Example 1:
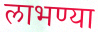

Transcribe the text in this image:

लाभण्या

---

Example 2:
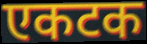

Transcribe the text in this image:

एकटक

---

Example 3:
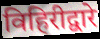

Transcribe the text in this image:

विहिरीद्वारे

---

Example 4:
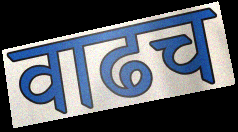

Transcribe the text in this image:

वाढच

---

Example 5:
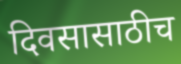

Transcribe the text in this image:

दिवसासाठीच